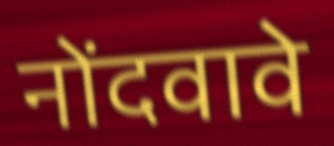
नोंदवावे